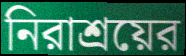
নিরাশ্রয়ের